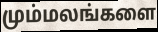
மும்மலங்களை